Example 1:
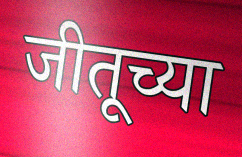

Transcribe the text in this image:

जीतूच्या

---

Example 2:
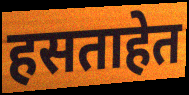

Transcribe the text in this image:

हसताहेत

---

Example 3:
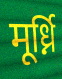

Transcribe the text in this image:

मूर्ध्नि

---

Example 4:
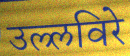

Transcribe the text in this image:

उल्लविरे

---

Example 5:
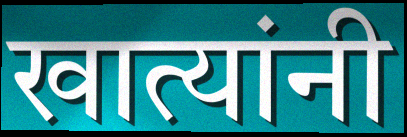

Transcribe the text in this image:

खात्यांनी